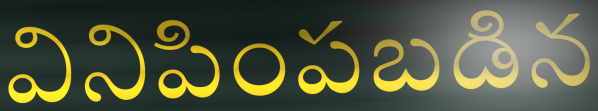
వినిపింపబడిన